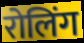
रोलिंग